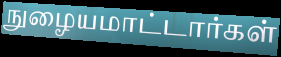
நுழையமாட்டார்கள்